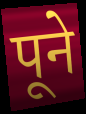
पूने